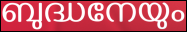
ബുദ്ധനേയും